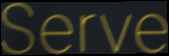
Serve